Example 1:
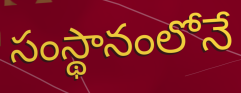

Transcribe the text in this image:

సంస్థానంలోనే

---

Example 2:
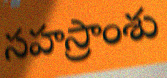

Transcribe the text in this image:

సహస్రాంశు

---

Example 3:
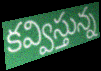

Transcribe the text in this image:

కవ్విస్తున్న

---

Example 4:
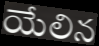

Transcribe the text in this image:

యేలిన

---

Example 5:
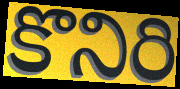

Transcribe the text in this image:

కొనిరి